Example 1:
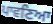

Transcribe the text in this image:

ਪਾਵਣਿਆ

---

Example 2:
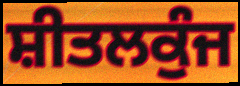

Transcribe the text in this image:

ਸ਼ੀਤਲਕੁੰਜ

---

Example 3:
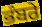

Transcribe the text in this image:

ਭੰਬਰੇ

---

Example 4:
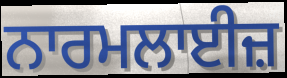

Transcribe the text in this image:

ਨਾਰਮਲਾਈਜ਼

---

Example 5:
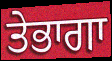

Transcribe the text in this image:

ਤੇਭਾਗਾ